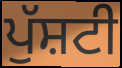
ਪੁੱਸ਼ਟੀ